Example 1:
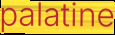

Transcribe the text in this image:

palatine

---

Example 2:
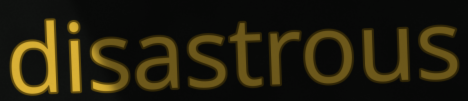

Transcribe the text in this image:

disastrous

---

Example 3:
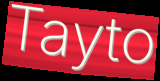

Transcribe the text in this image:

Tayto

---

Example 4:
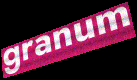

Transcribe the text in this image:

granum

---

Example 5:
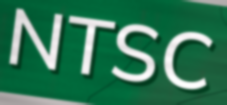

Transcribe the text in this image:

NTSC